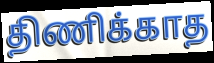
திணிக்காத